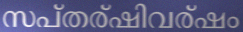
സപ്തര്ഷിവര്ഷം